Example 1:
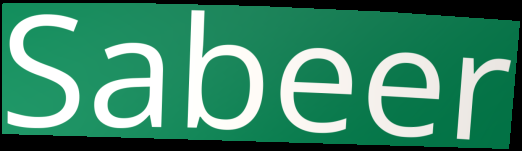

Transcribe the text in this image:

Sabeer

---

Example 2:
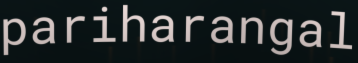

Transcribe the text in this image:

pariharangal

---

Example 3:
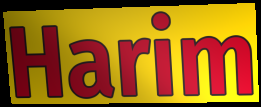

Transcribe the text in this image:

Harim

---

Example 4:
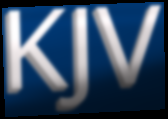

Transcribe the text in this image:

KJV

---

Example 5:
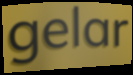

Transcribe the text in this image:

gelar